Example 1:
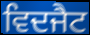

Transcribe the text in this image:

ਵਿਦਜੈਟ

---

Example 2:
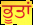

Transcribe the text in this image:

ਭੂਤਾਂ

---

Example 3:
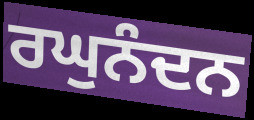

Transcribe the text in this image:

ਰਘੁਨੰਦਨ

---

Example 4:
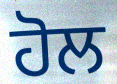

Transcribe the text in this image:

ਹੋਲ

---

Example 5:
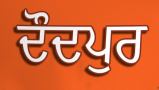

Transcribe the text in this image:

ਦੌਦਪੁਰ